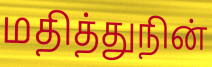
மதித்துநின்